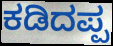
ಕಡಿದಪ್ಪ